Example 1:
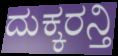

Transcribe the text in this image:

ದುಕ್ಕರನ್ತಿ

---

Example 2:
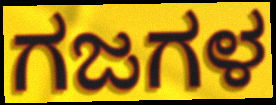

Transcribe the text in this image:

ಗಜಗಳ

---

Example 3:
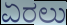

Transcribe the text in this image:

ಏರಲು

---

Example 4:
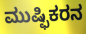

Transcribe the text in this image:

ಮುಷ್ಫಿಕರನ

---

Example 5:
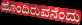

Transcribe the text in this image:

ಹೊಂದಿರುವನೆಂದು